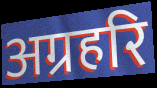
अग्रहरि